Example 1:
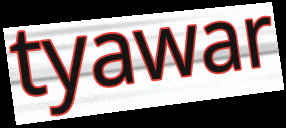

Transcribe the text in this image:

tyawar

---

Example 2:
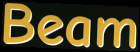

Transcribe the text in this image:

Beam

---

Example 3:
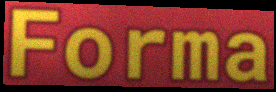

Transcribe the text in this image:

Forma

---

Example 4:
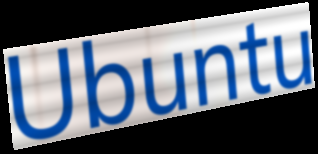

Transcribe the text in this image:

Ubuntu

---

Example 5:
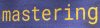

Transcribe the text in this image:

mastering